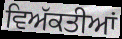
ਵਿਅੱਕਤੀਆਂ